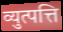
व्युत्पत्ति